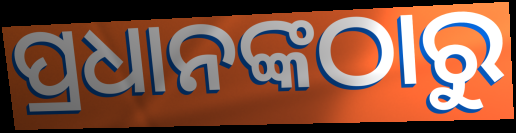
ପ୍ରଧାନଙ୍କଠାରୁ